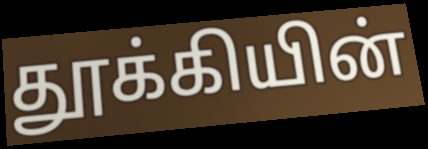
தூக்கியின்